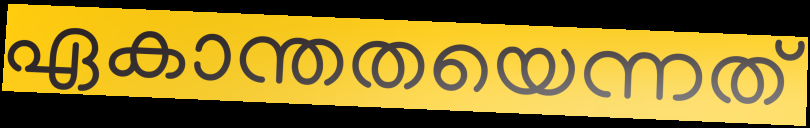
ഏകാന്തതയെന്നത്